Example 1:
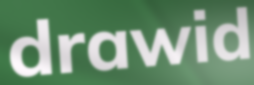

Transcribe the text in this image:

drawid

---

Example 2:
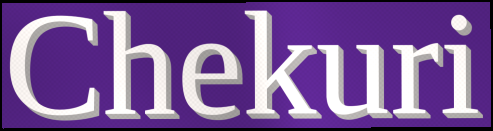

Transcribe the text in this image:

Chekuri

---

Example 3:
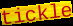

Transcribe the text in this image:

tickle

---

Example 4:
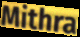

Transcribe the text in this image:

Mithra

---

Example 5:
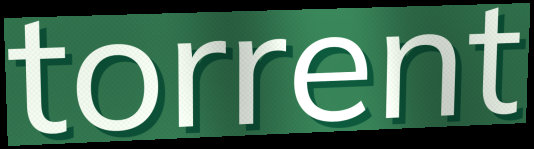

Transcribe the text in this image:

torrent